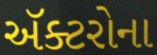
ઍક્ટરોના